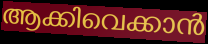
ആക്കിവെക്കാൻ